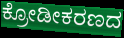
ಕ್ರೋಡೀಕರಣದ